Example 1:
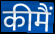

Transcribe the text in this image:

कीमैं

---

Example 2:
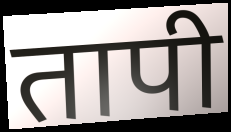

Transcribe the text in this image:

तापी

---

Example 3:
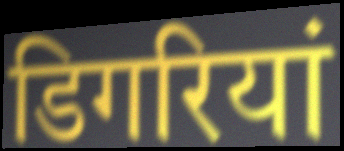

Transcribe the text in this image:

डिगरियां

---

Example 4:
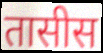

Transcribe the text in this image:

तासीस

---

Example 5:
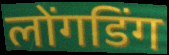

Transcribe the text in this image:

लोंगडिंग